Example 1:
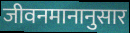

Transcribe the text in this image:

जीवनमानानुसार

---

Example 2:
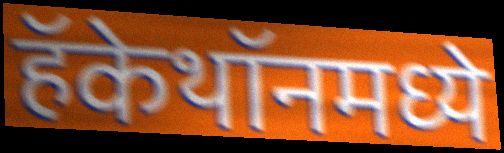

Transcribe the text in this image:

हॅकेथॉनमध्ये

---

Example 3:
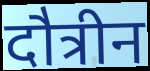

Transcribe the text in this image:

दौत्रीन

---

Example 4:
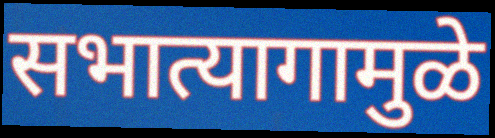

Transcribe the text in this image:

सभात्यागामुळे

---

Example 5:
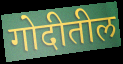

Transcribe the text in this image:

गोदीतील